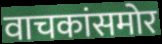
वाचकांसमोर